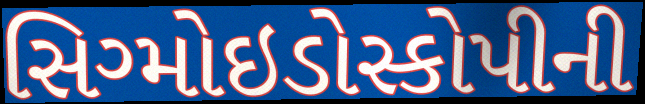
સિગ્મોઇડોસ્કોપીની